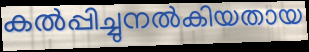
കൽപ്പിച്ചുനൽകിയതായ